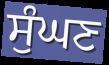
ਸੁੰਘਣ